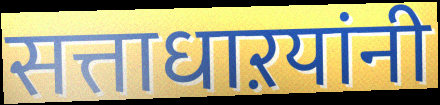
सत्ताधाऱयांनी